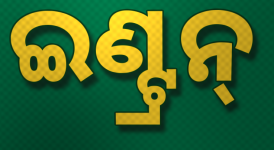
ଇଣ୍ଟ୍ରନ୍